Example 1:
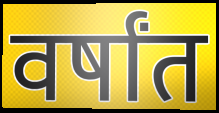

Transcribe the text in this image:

वर्षांत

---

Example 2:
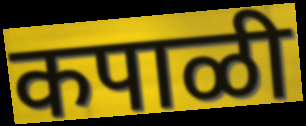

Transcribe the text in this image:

कपाळी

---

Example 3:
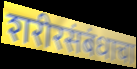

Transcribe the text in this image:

शरीरसंबंधाचा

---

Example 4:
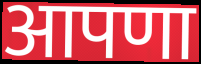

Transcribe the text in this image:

आपणा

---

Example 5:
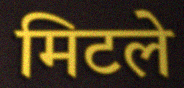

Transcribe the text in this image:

मिटले